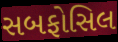
સબફોસિલ